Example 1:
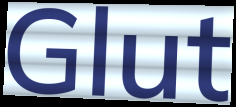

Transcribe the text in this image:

Glut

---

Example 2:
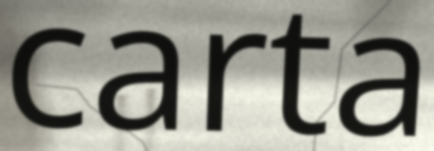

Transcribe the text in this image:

carta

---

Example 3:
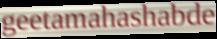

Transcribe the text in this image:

geetamahashabde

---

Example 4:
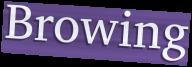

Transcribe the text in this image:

Browing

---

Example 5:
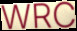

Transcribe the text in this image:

WRC